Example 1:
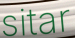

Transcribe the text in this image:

sitar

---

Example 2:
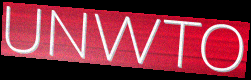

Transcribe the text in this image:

UNWTO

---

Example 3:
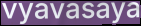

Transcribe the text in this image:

vyavasaya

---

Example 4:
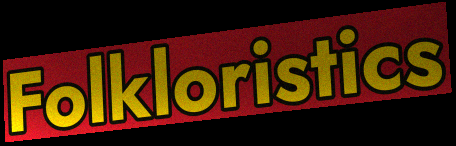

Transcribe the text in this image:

Folkloristics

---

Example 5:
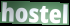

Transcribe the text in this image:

hostel